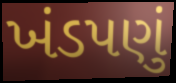
ખંડપણું